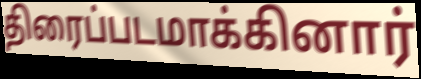
திரைப்படமாக்கினார்